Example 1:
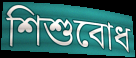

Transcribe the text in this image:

শিশুবোধ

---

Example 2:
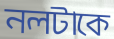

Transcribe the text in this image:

নলটাকে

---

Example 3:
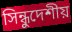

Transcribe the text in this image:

সিন্ধুদেশীয়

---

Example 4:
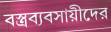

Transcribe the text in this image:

বস্ত্রব্যবসায়ীদের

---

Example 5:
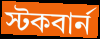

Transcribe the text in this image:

স্টকবার্ন